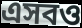
এসবও